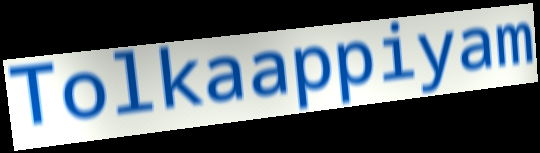
Tolkaappiyam